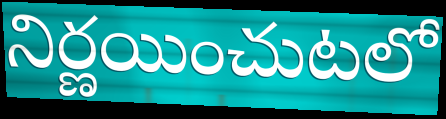
నిర్ణయించుటలో